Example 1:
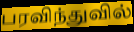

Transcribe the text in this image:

பரவிந்துவில்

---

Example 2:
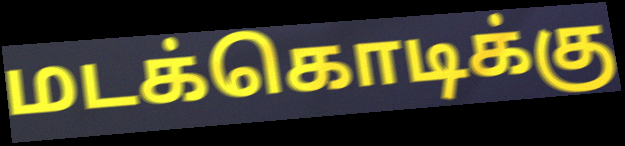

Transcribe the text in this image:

மடக்கொடிக்கு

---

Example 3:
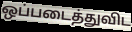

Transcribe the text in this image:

ஒப்படைத்துவிட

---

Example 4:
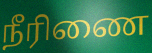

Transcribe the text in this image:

நீரிணை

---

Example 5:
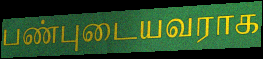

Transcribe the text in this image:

பண்புடையவராக